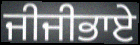
ਜੀਜੀਭਾਏ